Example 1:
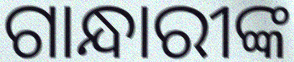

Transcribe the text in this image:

ଗାନ୍ଧାରୀଙ୍କ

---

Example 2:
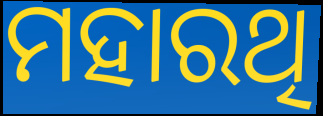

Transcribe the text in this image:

ମହାରଥି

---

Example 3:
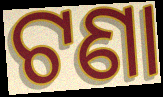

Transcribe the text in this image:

ଟଣା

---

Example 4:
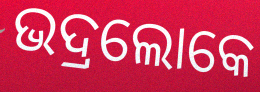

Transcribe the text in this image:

ଭଦ୍ରଲୋକେ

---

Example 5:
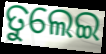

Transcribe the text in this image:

ତୁଲେଇ